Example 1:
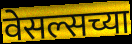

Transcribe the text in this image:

वेसल्सच्या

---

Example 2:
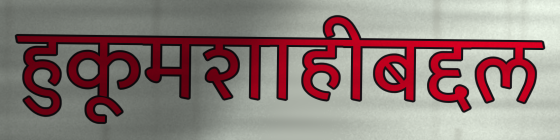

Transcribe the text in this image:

हुकूमशाहीबद्दल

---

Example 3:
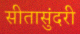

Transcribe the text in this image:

सीतासुंदरी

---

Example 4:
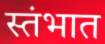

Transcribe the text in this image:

स्तंभात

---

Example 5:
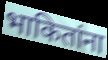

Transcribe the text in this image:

भाकितांना